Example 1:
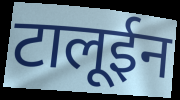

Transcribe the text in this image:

टालूईन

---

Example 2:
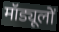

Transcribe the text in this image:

मॉड्यूलों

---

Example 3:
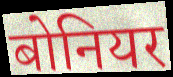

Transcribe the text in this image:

बोनियर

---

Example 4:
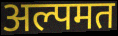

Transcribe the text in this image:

अल्पमत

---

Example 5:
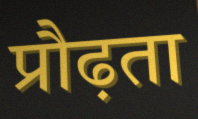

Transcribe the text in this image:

प्रौढ़ता